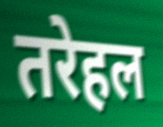
तरेहल